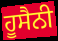
ਹੂਸੈਨੀ